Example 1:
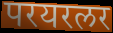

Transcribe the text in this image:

परयरलर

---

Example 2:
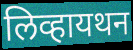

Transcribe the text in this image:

लिव्हायथन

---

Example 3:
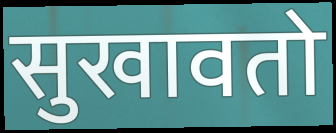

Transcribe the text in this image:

सुखावतो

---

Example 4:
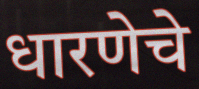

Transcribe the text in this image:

धारणेचे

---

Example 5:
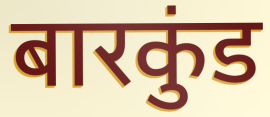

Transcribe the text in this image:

बारकुंड